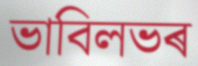
ভাবিলভৰ